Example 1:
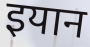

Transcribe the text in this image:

इयान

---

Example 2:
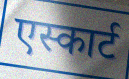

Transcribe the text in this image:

एस्कार्ट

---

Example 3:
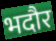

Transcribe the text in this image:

भदौर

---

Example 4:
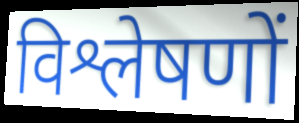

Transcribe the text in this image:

विश्लेषणों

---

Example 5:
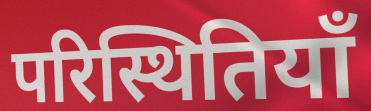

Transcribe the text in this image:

परिस्थितियाँ